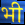
भी